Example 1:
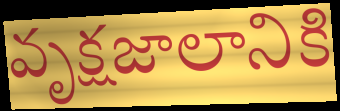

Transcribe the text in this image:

వృక్షజాలానికి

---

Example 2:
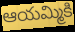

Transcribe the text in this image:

ఆయమ్మికి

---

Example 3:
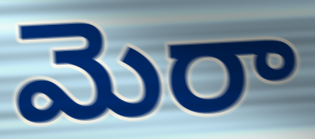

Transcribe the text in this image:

మెరా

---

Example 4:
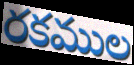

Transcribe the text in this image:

రకముల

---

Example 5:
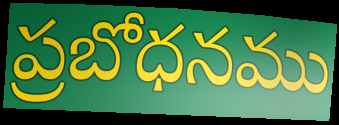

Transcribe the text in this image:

ప్రబోధనము